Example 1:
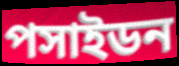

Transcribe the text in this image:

পসাইডন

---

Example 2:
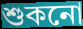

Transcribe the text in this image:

শুকনো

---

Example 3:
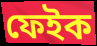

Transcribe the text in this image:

ফেইক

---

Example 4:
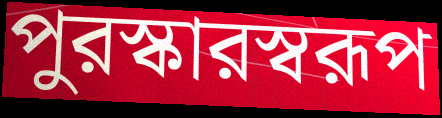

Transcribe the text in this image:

পুরস্কারস্বরূপ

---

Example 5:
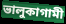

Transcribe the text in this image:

ভালুকাগামী